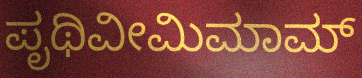
ಪೃಥಿವೀಮಿಮಾಮ್